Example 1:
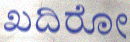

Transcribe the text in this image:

ಖದಿರೋ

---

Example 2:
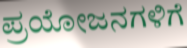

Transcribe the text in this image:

ಪ್ರಯೋಜನಗಳಿಗೆ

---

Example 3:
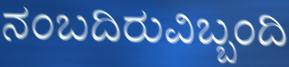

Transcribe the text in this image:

ನಂಬದಿರುವಿಬ್ಬಂದಿ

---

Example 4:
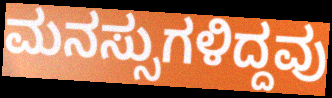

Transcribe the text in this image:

ಮನಸ್ಸುಗಳಿದ್ದವು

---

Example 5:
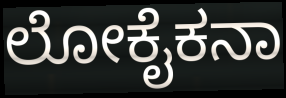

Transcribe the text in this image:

ಲೋಕೈಕನಾ